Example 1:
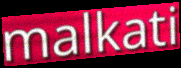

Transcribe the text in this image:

malkati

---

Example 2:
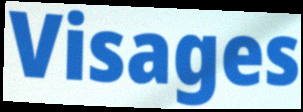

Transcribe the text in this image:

Visages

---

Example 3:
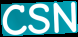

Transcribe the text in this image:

CSN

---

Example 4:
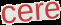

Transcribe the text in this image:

cere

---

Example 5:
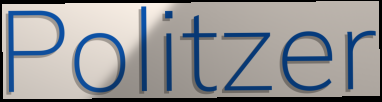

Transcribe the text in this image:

Politzer